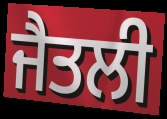
ਜੈਤਲੀ